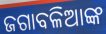
ଜଗାବଳିଆଙ୍କ